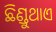
ଛିଣ୍ଡୁଥାଏ